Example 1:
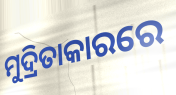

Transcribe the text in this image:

ମୁଦ୍ରିତାକାରରେ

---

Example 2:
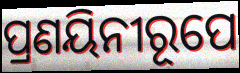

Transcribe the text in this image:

ପ୍ରଣୟିନୀରୂପେ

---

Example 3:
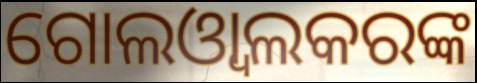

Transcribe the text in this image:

ଗୋଲଓ୍ଵାଲକରଙ୍କ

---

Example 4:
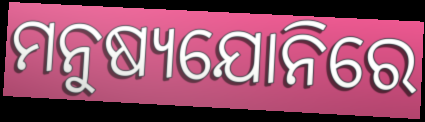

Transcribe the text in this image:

ମନୁଷ୍ୟଯୋନିରେ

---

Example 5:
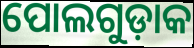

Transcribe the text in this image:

ପୋଲଗୁଡ଼ାକ